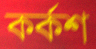
কৰ্কশ